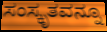
ಸಂಸ್ಕೃತವನ್ನೂ